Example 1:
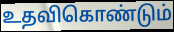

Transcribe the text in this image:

உதவிகொண்டும்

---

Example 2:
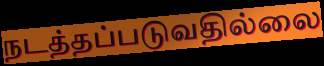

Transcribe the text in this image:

நடத்தப்படுவதில்லை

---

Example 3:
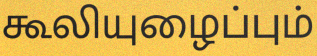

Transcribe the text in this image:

கூலியுழைப்பும்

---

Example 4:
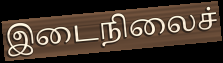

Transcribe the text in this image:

இடைநிலைச்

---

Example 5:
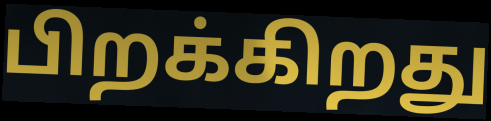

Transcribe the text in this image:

பிறக்கிறது